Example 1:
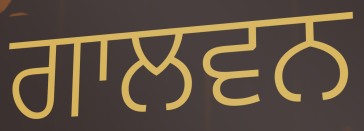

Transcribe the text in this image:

ਗਾਲਵਨ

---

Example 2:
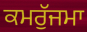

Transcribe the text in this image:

ਕਮਰੁੱਜਮਾ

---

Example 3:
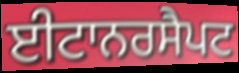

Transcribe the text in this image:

ਈਟਾਨਰਸੈਪਟ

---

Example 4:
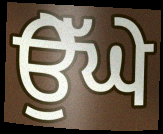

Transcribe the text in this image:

ਉੇੱਘੇ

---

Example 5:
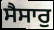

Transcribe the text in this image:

ਸੈਸਾਰੁ